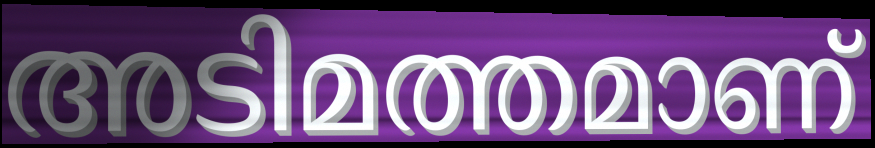
അടിമത്തമാണ്